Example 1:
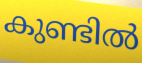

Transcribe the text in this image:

കുണ്ടിൽ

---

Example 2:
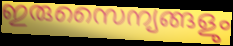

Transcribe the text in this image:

ഇരുസൈന്യങ്ങളും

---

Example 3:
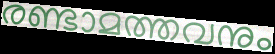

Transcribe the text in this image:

രണ്ടാമത്തവനും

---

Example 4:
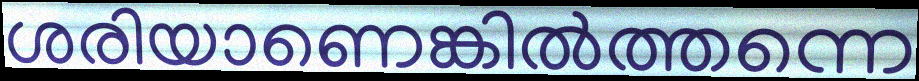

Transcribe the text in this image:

ശരിയാണെങ്കിൽത്തന്നെ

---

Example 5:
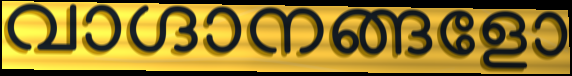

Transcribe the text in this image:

വാഗ്ദാനങ്ങളോ